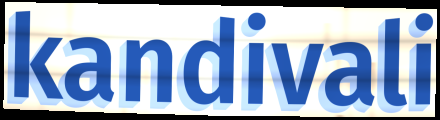
kandivali